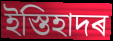
ইস্তিহাদৰ